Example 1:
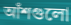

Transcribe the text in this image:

আঁশগুলো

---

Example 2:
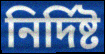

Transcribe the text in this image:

নির্দিষ্ট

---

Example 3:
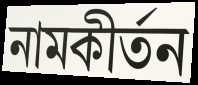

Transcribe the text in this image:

নামকীর্তন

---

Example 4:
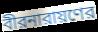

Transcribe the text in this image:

বীরনারায়ণের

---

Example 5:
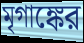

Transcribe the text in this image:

মৃগাঙ্কের